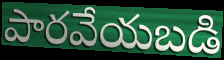
పారవేయబడి